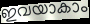
ഇവയാകാം